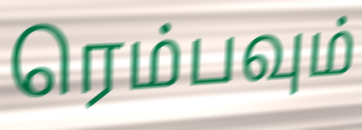
ரெம்பவும்